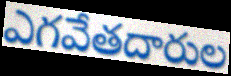
ఎగవేతదారుల